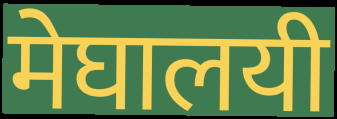
मेघालयी